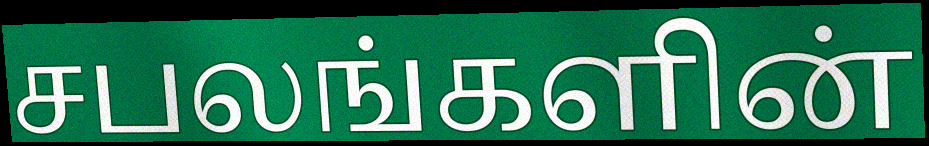
சபலங்களின்